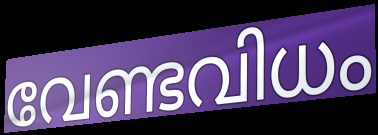
വേണ്ടവിധം